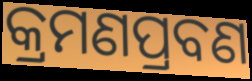
କ୍ରମଣପ୍ରବଣ